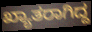
ಖ್ಯಾತರಾಗಿದ್ದ